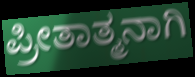
ಪ್ರೀತಾತ್ಮನಾಗಿ